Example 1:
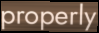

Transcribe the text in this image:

properly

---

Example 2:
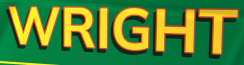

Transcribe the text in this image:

WRIGHT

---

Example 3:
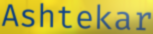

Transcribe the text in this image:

Ashtekar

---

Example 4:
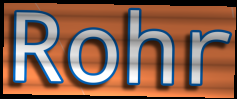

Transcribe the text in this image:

Rohr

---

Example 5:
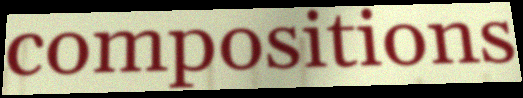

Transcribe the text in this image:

compositions